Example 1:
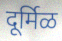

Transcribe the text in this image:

दूर्मिळ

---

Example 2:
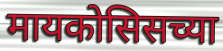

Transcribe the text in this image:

मायकोसिसच्या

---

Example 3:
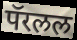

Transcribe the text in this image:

पॅरलल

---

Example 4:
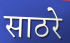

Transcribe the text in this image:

साठरे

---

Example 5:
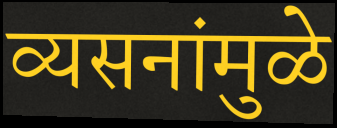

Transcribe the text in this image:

व्यसनांमुळे